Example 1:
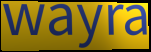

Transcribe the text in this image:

wayra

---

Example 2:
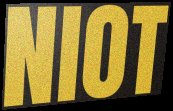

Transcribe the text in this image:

NIOT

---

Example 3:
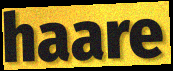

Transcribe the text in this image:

haare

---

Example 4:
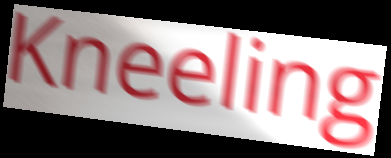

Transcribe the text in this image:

Kneeling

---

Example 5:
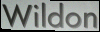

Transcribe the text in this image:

Wildon